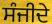
ਸੰਜੀਦੇ